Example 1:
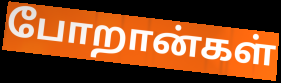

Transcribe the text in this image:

போறான்கள்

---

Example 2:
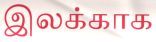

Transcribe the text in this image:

இலக்காக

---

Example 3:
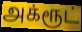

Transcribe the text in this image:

அக்ரூட்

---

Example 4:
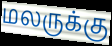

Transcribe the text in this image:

மலருக்கு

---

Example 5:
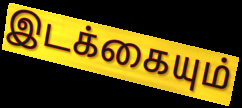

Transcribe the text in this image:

இடக்கையும்